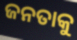
ଜନତାକୁ